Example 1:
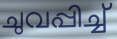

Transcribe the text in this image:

ചുവപ്പിച്ച്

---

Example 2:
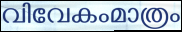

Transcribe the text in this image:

വിവേകംമാത്രം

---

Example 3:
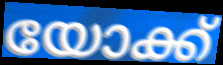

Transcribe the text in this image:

യോക്ക്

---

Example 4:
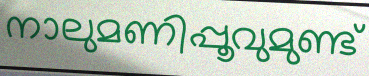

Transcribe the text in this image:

നാലുമണിപ്പൂവുമുണ്ട്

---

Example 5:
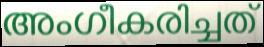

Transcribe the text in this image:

അംഗീകരിച്ചത്